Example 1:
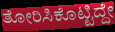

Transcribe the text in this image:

ತೋರಿಸಿಕೊಟ್ಟಿದ್ದೇ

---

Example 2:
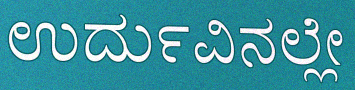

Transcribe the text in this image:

ಉರ್ದುವಿನಲ್ಲೇ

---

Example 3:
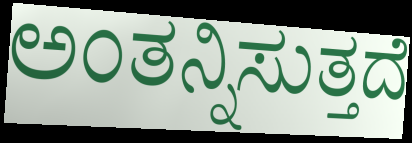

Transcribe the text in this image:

ಅಂತನ್ನಿಸುತ್ತದೆ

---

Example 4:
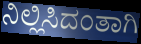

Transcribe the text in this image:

ನಿಲ್ಲಿಸಿದಂತಾಗಿ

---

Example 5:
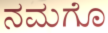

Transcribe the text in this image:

ನಮಗೊ